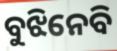
ବୁଝିନେବି